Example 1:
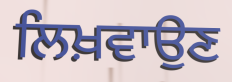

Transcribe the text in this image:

ਲਿਖ਼ਵਾਉਣ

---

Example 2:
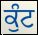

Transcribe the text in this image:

ਕੁੰਟ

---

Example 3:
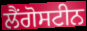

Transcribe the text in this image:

ਲੈਂਗੋਸਟੀਨ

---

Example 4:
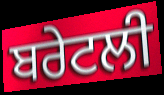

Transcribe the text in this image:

ਬਰੇਟਲੀ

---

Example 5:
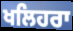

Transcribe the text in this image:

ਖਲਿਹਰਾ